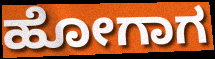
ಹೋಗಾಗ